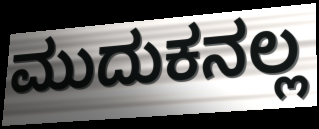
ಮುದುಕನಲ್ಲ